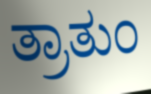
ತ್ರಾತುಂ